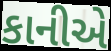
કાનીએ